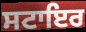
ਸਟਾਇਰ